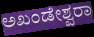
ಅಖಂಡೇಶ್ವರಾ